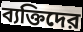
ব্যক্তিদের